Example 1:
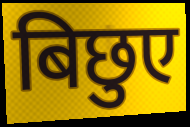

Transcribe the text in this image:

बिछुए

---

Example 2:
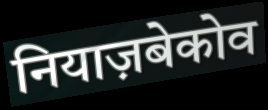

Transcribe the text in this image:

नियाज़बेकोव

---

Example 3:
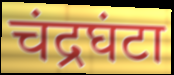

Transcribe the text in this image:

चंद्रघंटा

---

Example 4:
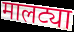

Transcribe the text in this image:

मालट्या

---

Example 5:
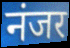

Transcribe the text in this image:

नंजर